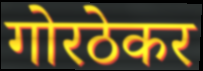
गोरठेकर